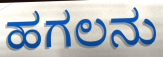
ಹಗಲನು